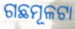
ଗଛମୂଳଟା